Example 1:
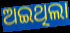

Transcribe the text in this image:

ଅଇଥିଲା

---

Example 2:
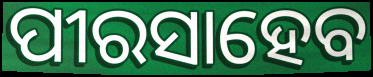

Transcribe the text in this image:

ପୀରସାହେବ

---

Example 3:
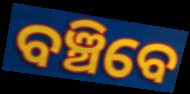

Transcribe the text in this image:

ବଞ୍ଚିବେ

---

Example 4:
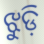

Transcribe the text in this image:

ଝୁଡ଼ି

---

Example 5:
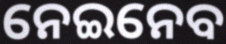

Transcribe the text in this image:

ନେଇନେବ